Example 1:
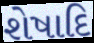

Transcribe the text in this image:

શેષાદિ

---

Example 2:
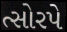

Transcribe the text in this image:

ત્સોરપે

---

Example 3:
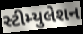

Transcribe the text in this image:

સ્ટીમ્યુલેશન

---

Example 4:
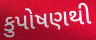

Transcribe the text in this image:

કુપોષણથી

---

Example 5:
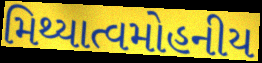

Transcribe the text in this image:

મિથ્યાત્વમોહનીય